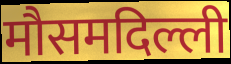
मौसमदिल्ली